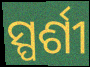
ସ୍ପର୍ଶୀ